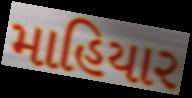
માહિયાર